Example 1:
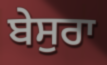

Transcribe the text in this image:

ਬੇਸੁਰਾ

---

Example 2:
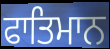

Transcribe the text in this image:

ਫਾਤਿਮਾਨ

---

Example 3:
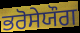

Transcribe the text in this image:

ਭਰੋਸੇਯੌਗ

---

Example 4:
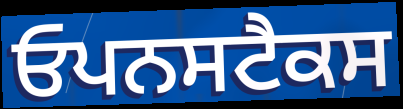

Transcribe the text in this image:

ਓਪਨਸਟੈਕਸ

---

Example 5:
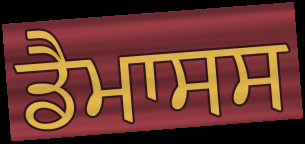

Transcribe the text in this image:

ਡੈਮਾਸਸ